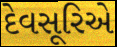
દેવસૂરિએ